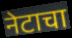
नेटाचा